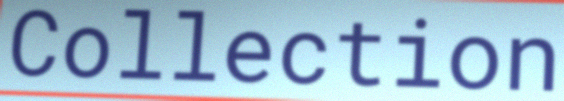
Collection